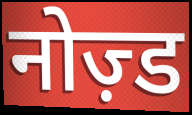
नोज़्ड